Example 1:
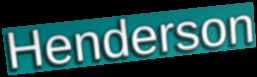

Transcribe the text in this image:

Henderson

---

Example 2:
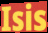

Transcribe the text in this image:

Isis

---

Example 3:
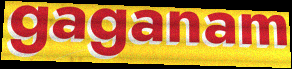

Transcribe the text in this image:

gaganam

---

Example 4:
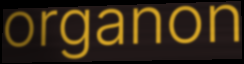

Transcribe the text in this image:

organon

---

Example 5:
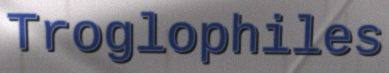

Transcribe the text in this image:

Troglophiles